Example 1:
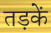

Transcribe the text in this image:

तड़कें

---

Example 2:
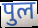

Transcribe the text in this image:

पुल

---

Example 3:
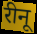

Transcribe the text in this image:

रीनू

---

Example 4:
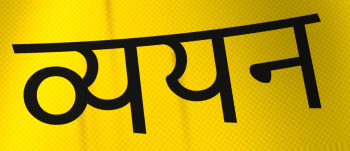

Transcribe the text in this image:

व्ययन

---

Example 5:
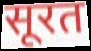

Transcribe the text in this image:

सूरत